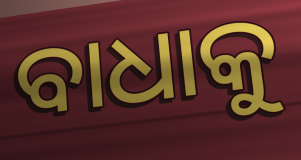
ବାଧାକୁ